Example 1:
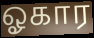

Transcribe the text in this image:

ஓகார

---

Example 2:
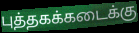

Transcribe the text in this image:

புத்தகக்கடைக்கு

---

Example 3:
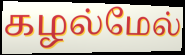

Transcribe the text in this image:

கழல்மேல்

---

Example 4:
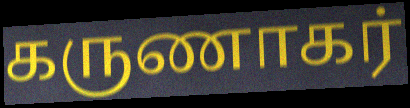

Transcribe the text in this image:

கருணாகர்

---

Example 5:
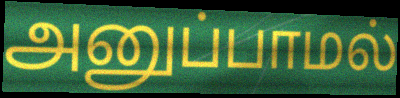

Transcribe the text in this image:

அனுப்பாமல்